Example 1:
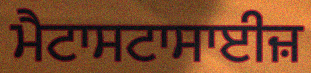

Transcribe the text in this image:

ਮੈਟਾਸਟਾਸਾਈਜ਼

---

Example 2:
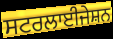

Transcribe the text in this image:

ਸਟਰਲਾਈਜੇਸ਼ਨ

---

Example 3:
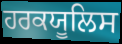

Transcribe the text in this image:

ਹਰਕਯੂਲਿਸ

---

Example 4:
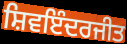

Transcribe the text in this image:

ਸ਼ਿਵਇੰਦਰਜੀਤ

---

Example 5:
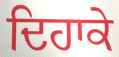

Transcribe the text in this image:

ਦਿਹਾਕੇ